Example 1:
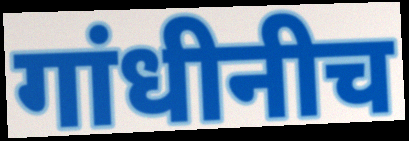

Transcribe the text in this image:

गांधीनीच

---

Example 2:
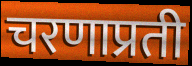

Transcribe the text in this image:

चरणाप्रती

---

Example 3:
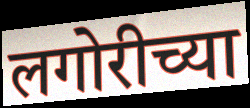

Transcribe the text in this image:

लगोरीच्या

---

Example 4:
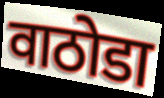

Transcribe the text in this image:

वाठोडा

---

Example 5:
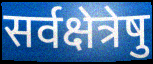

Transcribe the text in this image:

सर्वक्षेत्रेषु